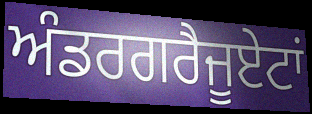
ਅੰਡਰਗਰੈਜੂਏਟਾਂ